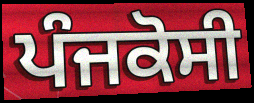
ਪੰਜਕੋਸੀ